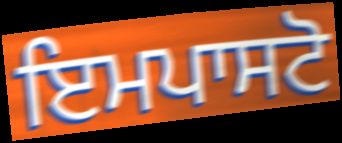
ਇਮਪਾਸਟੋ